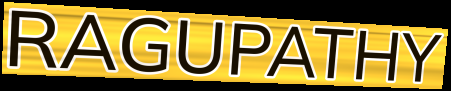
RAGUPATHY